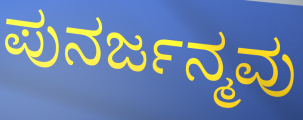
ಪುನರ್ಜನ್ಮವು